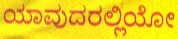
ಯಾವುದರಲ್ಲಿಯೋ